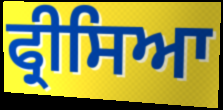
ਫ੍ਰੀਸਿਆ